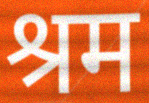
श्रम